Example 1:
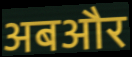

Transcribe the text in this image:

अबऔर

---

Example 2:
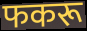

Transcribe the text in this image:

फकरू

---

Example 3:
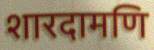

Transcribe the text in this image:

शारदामणि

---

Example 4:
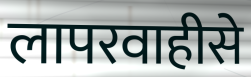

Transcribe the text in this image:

लापरवाहीसे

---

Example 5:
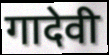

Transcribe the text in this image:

गादेवी